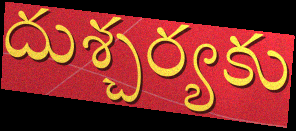
దుశ్చర్యకు